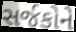
સર્જકોને